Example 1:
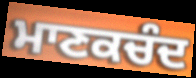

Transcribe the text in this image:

ਮਾਣਕਚੰਦ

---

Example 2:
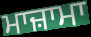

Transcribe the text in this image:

ਮਾਜ਼ਾਮਾ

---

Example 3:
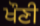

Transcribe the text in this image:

ਖੌਣੀ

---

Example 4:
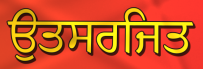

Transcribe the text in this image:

ਉਤਸਰਜਿਤ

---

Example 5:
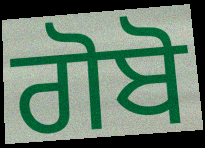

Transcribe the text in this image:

ਗੋਬੋ